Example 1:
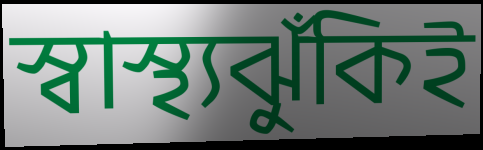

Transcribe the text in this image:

স্বাস্থ্যঝুঁকিই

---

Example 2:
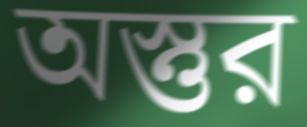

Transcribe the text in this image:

অস্তুর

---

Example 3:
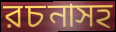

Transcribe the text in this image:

রচনাসহ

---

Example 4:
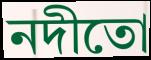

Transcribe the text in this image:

নদীতো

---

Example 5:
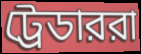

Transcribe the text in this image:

ট্রেডাররা